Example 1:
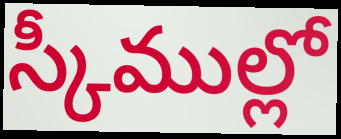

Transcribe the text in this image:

స్కీముల్లో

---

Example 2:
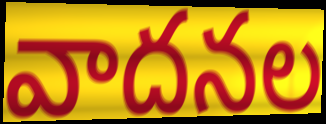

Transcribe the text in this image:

వాదనల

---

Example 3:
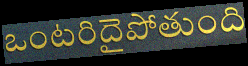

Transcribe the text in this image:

ఒంటరిదైపోతుంది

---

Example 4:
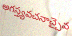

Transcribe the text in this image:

అగస్త్యవచనాచ్చైవ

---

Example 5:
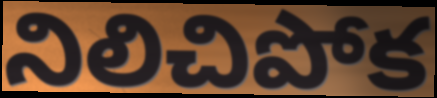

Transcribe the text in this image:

నిలిచిపోక